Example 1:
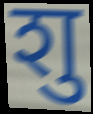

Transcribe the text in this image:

शु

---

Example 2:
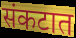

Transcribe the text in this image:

संकटात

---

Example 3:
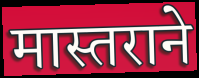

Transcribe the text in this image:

मास्तराने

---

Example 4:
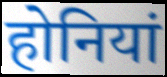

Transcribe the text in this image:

होनियां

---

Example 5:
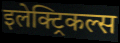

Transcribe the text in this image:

इलेक्ट्रिकल्स